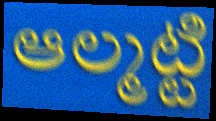
ఆల్మట్టి